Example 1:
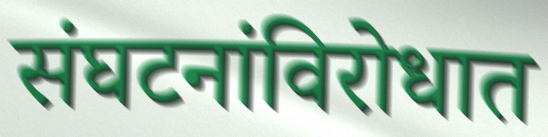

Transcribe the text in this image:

संघटनांविरोधात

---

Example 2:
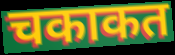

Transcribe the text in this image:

चकाकत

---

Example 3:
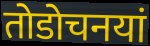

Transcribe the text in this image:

तोडोचनयां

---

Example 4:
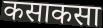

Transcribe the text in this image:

कसाकसा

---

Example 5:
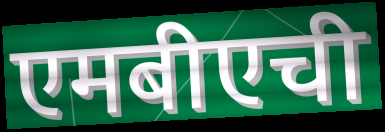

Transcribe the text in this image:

एमबीएची